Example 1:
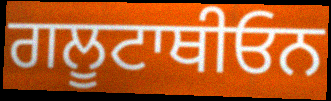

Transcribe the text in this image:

ਗਲੂਟਾਥੀਓਨ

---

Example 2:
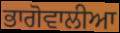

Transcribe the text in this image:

ਭਾਗੋਵਾਲੀਆ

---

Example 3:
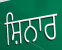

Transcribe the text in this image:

ਸ਼ਿਨਾਰ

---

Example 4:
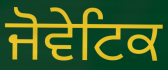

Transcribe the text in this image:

ਜੋਵੇਟਿਕ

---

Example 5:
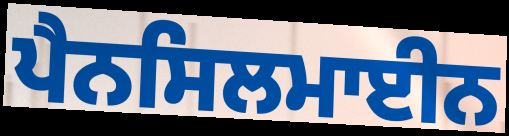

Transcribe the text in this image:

ਪੈਨਸਿਲਮਾਈਨ